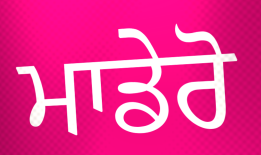
ਮਾਡੇਰੋ